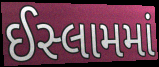
ઈસ્લામમાં